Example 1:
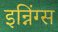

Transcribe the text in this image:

इन्निंग्स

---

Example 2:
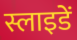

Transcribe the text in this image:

स्लाइडें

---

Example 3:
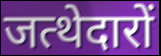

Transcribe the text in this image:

जत्थेदारों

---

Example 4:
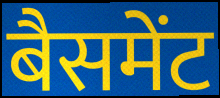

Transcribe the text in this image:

बैसमेंट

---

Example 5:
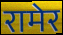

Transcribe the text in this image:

रामेर